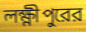
লক্ষ্ণীপুরের